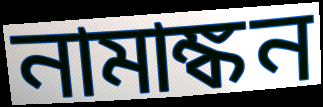
নামাঙ্কন